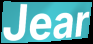
Jear